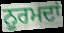
ਨੂਰਮਦਾਂ